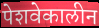
पेशवेकालीन